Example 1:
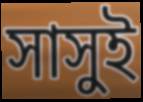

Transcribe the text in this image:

সাসুই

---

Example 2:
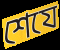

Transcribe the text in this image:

শেযে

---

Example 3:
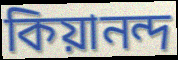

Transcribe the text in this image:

কিয়ানন্দ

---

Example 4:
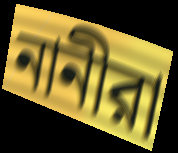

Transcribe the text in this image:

নানীরা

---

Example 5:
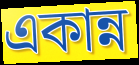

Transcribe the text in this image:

একান্ন